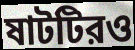
ষাটটিরও